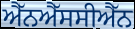
ਐੱਨਐੱਸਸੀਐੱਨ